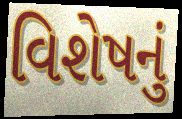
વિશેષનું